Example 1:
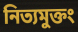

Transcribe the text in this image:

নিত্যমুক্তং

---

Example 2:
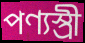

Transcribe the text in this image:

পণ্যস্ত্রী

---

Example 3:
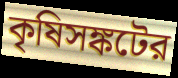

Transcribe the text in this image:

কৃষিসঙ্কটের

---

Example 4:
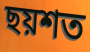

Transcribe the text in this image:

ছয়শত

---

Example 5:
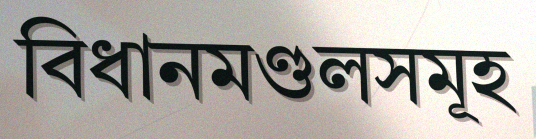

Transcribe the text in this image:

বিধানমণ্ডলসমূহ